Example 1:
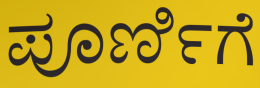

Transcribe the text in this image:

ಪೂರ್ಣಿಗೆ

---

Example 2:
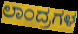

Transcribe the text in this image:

ಲಾಂದ್ರಗಳ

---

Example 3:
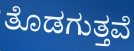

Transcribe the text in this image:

ತೊಡಗುತ್ತವೆ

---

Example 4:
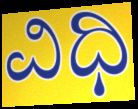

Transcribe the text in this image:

ವಿಧಿ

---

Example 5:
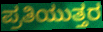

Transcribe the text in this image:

ಪ್ರತಿಯುತ್ತರ